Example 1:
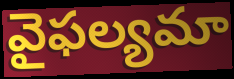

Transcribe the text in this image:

వైఫల్యమా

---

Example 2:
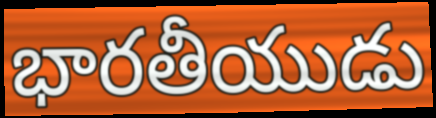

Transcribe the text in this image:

భారతీయుడు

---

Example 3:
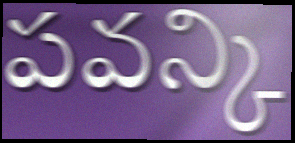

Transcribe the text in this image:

పవన్కి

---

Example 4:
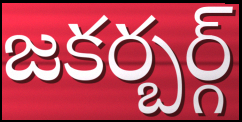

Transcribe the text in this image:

జకర్బర్గ్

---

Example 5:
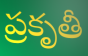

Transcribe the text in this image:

ప్రకృతీ